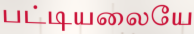
பட்டியலையே